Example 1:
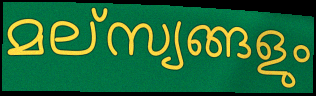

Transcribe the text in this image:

മല്സ്യങ്ങളും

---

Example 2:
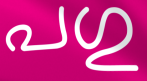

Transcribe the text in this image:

പഗു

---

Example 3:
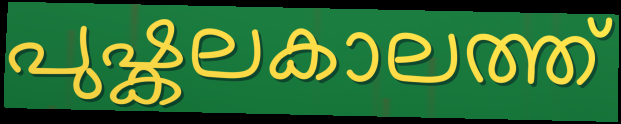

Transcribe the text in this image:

പുഷ്കലകാലത്ത്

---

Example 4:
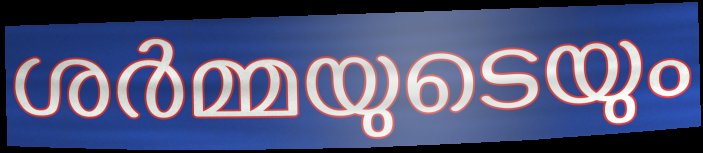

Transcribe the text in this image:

ശർമ്മയുടെയും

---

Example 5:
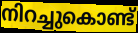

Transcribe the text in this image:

നിറച്ചുകൊണ്ട്